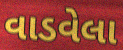
વાડવેલા